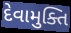
દેવામુક્તિ